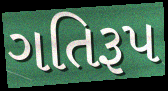
ગતિરૂપ